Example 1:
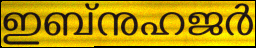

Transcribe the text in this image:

ഇബ്നുഹജർ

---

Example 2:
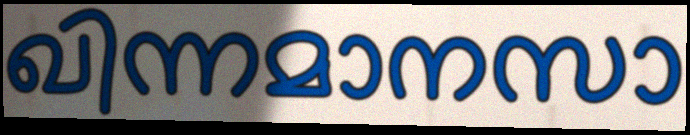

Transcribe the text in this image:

ഖിന്നമാനസാ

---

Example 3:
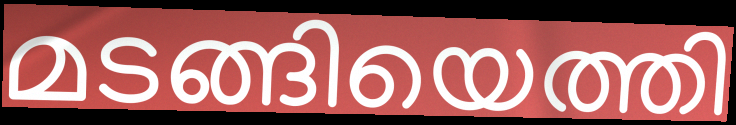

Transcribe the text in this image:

മടങ്ങിയെത്തി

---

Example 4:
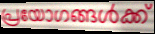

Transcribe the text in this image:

പ്രയോഗങ്ങൾക്ക്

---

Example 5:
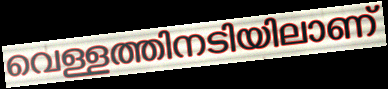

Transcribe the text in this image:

വെള്ളത്തിനടിയിലാണ്